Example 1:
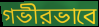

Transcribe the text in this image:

গভীরভাবে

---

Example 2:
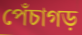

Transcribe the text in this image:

পেঁচাগড়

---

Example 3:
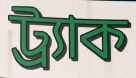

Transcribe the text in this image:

ট্র্যাক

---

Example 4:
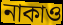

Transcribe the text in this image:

নাকাও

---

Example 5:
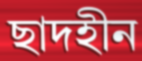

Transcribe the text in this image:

ছাদহীন